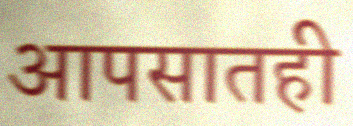
आपसातही